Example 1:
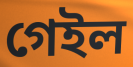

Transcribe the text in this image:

গেইল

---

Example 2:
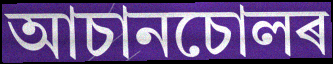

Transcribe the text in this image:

আচানচোলৰ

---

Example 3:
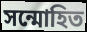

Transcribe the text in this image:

সন্মোহিত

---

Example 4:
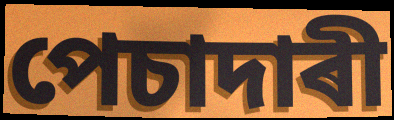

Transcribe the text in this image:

পেচাদাৰী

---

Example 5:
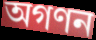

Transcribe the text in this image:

অগণন